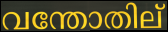
വന്തോതില്